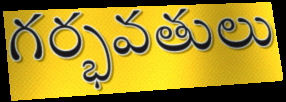
గర్భవతులు